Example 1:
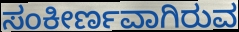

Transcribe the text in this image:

ಸಂಕೀರ್ಣವಾಗಿರುವ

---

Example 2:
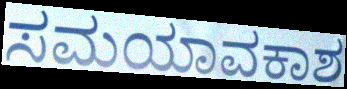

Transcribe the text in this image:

ಸಮಯಾವಕಾಶ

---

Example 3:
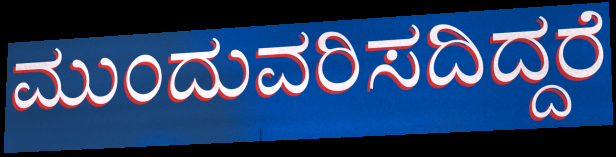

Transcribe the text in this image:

ಮುಂದುವರಿಸದಿದ್ದರೆ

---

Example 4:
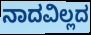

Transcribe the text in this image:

ನಾದವಿಲ್ಲದ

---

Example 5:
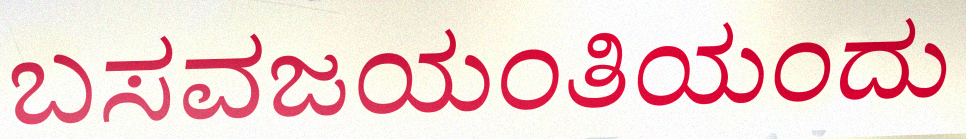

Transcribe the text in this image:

ಬಸವಜಯಂತಿಯಂದು